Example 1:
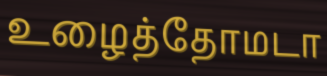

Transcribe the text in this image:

உழைத்தோமடா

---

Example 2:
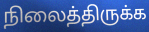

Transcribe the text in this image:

நிலைத்திருக்க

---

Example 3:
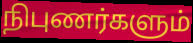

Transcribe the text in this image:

நிபுணர்களும்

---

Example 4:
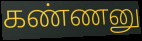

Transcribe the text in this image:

கண்ணனு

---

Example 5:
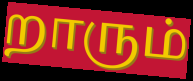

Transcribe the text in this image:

றாரும்